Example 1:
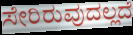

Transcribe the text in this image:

ಸೇರಿರುವುದಲ್ಲದೆ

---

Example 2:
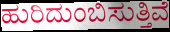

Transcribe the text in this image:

ಹುರಿದುಂಬಿಸುತ್ತಿವೆ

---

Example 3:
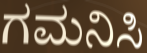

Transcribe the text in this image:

ಗಮನಿಸಿ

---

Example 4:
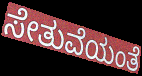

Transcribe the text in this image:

ಸೇತುವೆಯಂತೆ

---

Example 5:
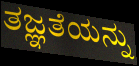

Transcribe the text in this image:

ತಜ್ಞತೆಯನ್ನು